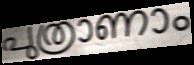
പുത്രാണാം